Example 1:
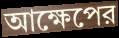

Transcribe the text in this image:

আক্ষেপের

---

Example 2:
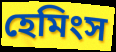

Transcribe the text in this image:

হেমিংস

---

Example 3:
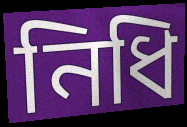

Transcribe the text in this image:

নিধি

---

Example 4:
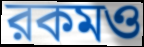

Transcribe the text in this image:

রকমও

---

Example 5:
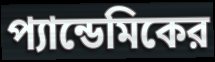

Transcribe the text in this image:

প্যান্ডেমিকের